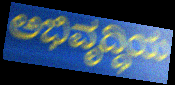
ಅಭಿವೃದ್ಧಿಯ